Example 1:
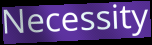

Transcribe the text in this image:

Necessity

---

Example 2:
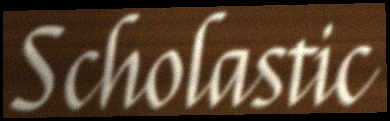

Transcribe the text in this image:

Scholastic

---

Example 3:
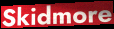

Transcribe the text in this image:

Skidmore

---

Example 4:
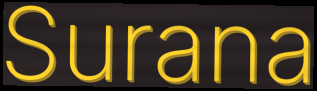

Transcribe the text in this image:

Surana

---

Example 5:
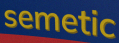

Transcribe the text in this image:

semetic